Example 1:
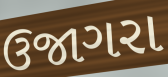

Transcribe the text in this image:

ઉજાગરા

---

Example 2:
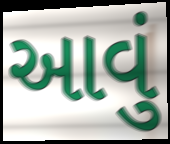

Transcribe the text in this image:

આવું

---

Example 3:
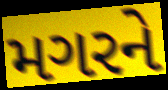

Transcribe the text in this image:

મગરને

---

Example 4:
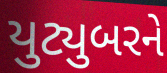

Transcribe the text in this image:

યુટ્યુબરને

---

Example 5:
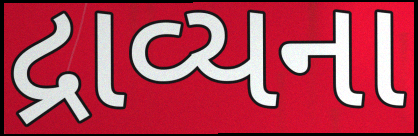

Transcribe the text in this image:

દ્રાવ્યના